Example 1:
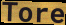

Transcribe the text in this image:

Tore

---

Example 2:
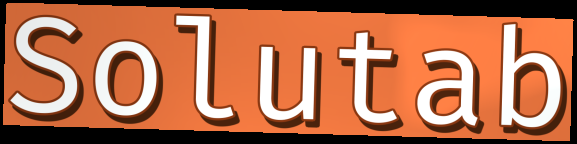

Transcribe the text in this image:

Solutab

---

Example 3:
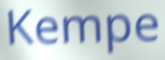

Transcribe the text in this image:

Kempe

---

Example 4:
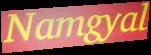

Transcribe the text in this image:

Namgyal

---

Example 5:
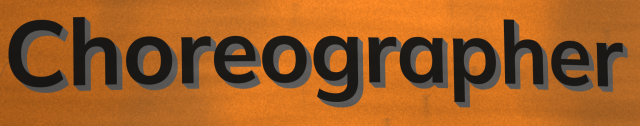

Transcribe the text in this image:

Choreographer